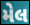
મેલ